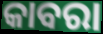
କାବରା